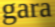
gara